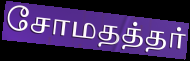
சோமதத்தர்